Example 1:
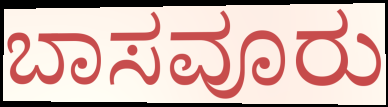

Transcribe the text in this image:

ಬಾಸವೂರು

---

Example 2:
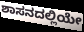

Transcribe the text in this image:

ಶಾಸನದಲ್ಲಿಯೇ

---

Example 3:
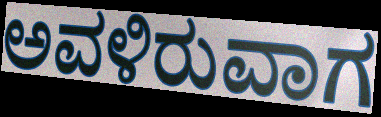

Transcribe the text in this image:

ಅವಳಿರುವಾಗ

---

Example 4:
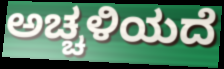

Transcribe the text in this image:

ಅಚ್ಚಳಿಯದೆ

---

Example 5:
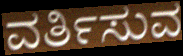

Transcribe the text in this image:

ವರ್ತಿಸುವ